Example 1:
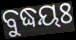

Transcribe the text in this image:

ବୁଦ୍ଧୟଃ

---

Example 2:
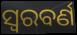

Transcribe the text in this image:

ସ୍ଵରବର୍ଣ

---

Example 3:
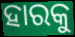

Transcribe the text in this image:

ହାରକୁ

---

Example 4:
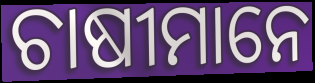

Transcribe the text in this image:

ଚାଷୀମାନେ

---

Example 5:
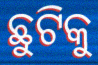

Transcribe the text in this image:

ଛୁଟିକୁ